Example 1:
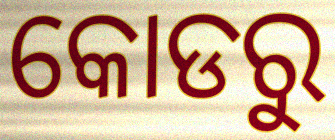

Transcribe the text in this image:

କୋଡରୁ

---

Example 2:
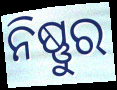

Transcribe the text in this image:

ନିଷ୍ଣୁର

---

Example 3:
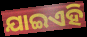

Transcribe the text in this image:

ଯାଇଏହି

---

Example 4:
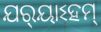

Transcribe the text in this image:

ଯର୍‌ୟାଽହମ୍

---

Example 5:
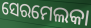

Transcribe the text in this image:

ସେରମେଲକା